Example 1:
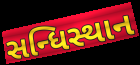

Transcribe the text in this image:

સન્ધિસ્થાન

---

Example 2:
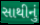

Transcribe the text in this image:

સાથીનું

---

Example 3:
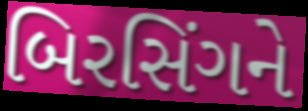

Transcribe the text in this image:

બિરસિંગને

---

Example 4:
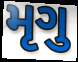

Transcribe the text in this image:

મૃગુ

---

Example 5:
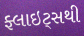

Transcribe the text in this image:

ફ્લાઇટ્સથી